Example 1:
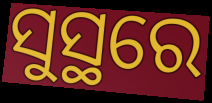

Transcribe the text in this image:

ସୁସ୍ଥରେ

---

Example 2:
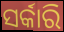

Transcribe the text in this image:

ସର୍କାରି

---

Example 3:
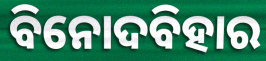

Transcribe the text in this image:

ବିନୋଦବିହାର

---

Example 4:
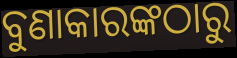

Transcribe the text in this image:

ବୁଣାକାରଙ୍କଠାରୁ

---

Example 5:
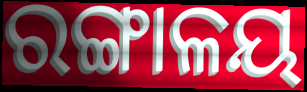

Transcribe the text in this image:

ରଙ୍ଗାଳୟ